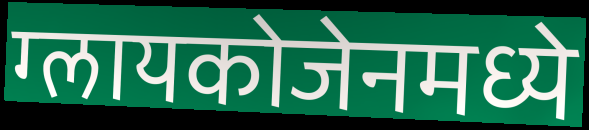
ग्लायकोजेनमध्ये